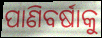
ପାଣିବର୍ଷାକୁ